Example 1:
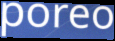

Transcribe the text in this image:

poreo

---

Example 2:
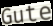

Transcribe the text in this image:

Gute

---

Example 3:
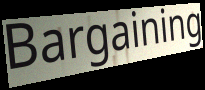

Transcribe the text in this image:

Bargaining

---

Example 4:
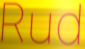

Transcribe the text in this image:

Rud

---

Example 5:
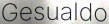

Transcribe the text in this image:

Gesualdo